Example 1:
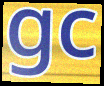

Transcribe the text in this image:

gc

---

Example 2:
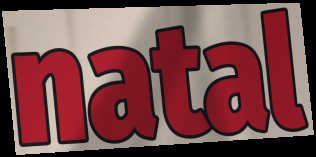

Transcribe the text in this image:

natal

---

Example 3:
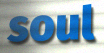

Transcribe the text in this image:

soul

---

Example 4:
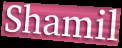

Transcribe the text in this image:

Shamil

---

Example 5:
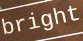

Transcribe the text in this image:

bright